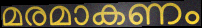
മരമാകണം